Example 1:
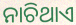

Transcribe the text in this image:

ନାଚିଥାଏ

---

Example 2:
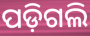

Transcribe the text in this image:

ପଡ଼ିଗଲି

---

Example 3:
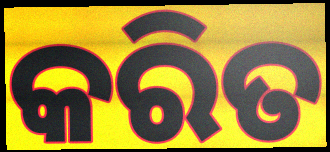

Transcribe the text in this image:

କରିତ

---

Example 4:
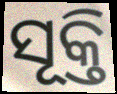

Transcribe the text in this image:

ସୂକ୍ତି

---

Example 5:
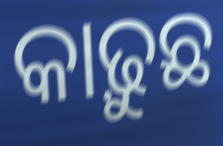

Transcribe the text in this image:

କାଢ଼ୁଛ